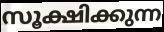
സൂക്ഷിക്കുന്ന